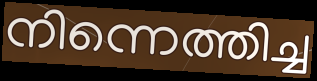
നിന്നെത്തിച്ച